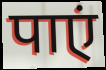
पाएं